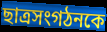
ছাত্রসংগঠনকে